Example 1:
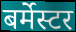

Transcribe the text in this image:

बर्मेस्टर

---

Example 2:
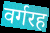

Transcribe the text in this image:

वर्गरह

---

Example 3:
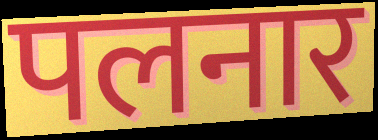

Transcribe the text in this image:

पलनार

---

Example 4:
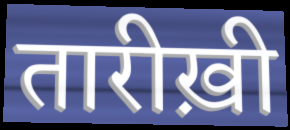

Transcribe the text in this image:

तारीख़ी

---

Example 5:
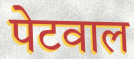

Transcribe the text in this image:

पेटवाल